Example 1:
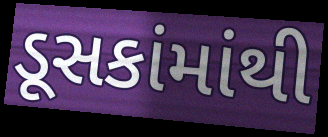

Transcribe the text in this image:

ડૂસકાંમાંથી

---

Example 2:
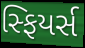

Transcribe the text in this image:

સ્ફિયર્સ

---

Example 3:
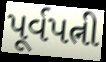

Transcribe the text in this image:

પૂર્વપત્ની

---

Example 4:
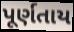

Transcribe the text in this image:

પૂર્ણતાય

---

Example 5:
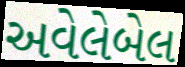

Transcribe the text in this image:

અવેલેબેલ